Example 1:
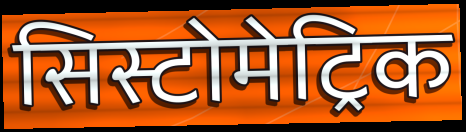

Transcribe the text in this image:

सिस्टोमेट्रिक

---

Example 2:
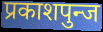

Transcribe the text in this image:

प्रकाशपुन्ज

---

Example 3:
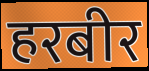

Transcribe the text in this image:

हरबीर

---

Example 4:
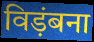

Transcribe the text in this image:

विड़ंबना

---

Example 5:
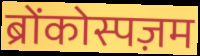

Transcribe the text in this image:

ब्रोंकोस्पज़म